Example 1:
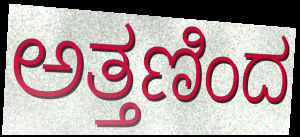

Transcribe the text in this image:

ಅತ್ತಣಿಂದ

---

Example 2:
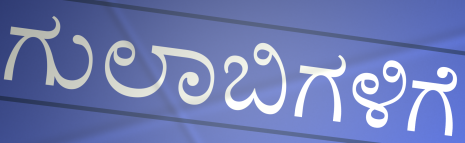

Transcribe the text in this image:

ಗುಲಾಬಿಗಳಿಗೆ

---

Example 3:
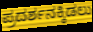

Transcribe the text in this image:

ಪ್ರದರ್ಶನಕ್ಕಿಡಲು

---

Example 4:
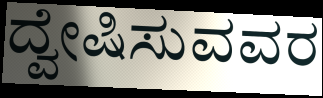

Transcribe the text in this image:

ದ್ವೇಷಿಸುವವರ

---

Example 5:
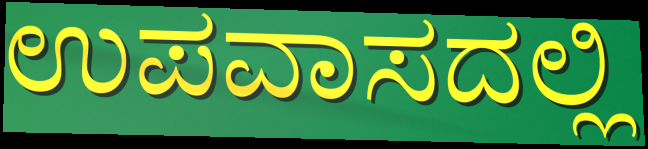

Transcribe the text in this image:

ಉಪವಾಸದಲ್ಲಿ